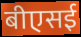
बीएसई